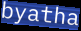
byatha